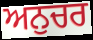
ਅਨੁਚਰ